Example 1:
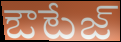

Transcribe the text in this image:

ఔటేజ్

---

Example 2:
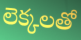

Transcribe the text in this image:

లెక్కలతో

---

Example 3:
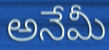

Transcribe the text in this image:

అనేమీ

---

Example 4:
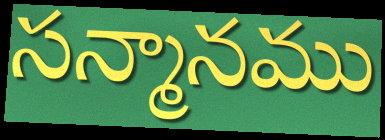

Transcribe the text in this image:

సన్మానము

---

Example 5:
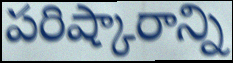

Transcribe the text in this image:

పరిష్కారాన్ని